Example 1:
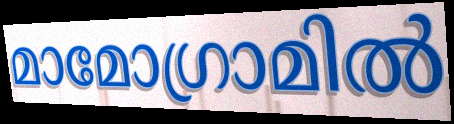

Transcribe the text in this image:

മാമോഗ്രാമിൽ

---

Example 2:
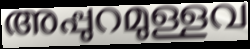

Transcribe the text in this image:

അപ്പുറമുള്ളവ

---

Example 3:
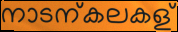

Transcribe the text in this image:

നാടന്കലകള്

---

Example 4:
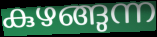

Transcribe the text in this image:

കുഴങ്ങുന്ന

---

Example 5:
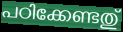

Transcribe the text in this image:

പഠിക്കേണ്ടതു്